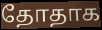
தோதாக